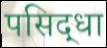
पसिद्धा